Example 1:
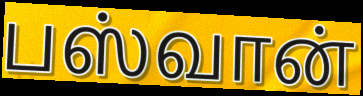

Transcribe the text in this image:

பஸ்வான்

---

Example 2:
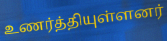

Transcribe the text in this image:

உணர்த்தியுள்ளனர்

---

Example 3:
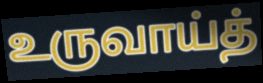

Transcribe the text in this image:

உருவாய்த்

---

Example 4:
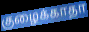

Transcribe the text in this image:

குழைக்காதா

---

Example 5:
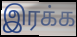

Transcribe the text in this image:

இரக்க